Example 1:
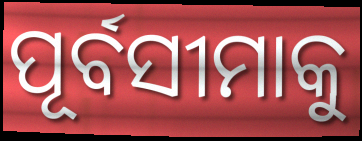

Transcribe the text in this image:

ପୂର୍ବସୀମାକୁ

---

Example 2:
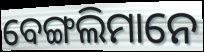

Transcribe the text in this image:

ବେଙ୍ଗଲିମାନେ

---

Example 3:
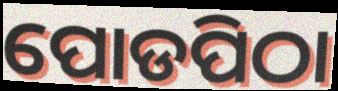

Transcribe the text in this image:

ପୋଡପିଠା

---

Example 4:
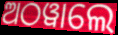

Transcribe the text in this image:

ଅଠୱାଲେ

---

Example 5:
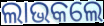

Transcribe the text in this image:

ଲାଭକଲେ